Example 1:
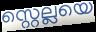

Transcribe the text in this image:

സ്റ്റെല്ലയെ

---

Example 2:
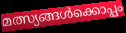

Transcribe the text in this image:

മത്സ്യങ്ങൾക്കൊപ്പം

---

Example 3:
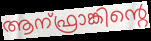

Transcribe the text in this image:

ആന്ഫ്രാങ്കിന്റെ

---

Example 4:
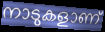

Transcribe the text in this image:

നാടുകളാണ്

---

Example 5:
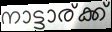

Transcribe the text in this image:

നാട്ടാര്ക്ക്